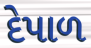
દેપાળ